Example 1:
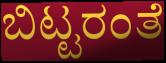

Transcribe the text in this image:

ಬಿಟ್ಟರಂತೆ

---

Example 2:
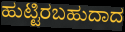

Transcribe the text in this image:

ಹುಟ್ಟಿರಬಹುದಾದ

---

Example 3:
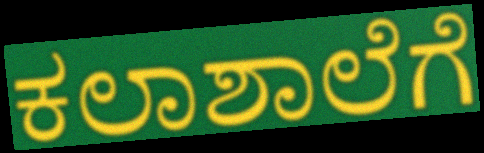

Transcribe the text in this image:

ಕಲಾಶಾಲೆಗೆ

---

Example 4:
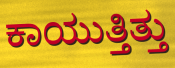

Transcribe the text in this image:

ಕಾಯುತ್ತಿತ್ತು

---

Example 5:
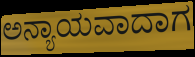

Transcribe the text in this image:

ಅನ್ಯಾಯವಾದಾಗ